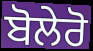
ਬੋਲੇਰੋ